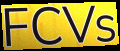
FCVs